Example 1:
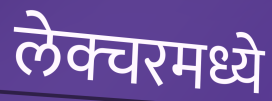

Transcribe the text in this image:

लेक्चरमध्ये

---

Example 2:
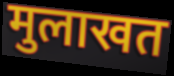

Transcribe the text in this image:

मुलाखत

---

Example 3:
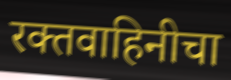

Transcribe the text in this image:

रक्तवाहिनीचा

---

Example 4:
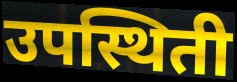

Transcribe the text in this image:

उपस्थिती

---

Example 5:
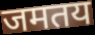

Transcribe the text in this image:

जमतय